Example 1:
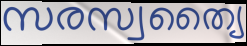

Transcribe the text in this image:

സരസ്വത്യൈ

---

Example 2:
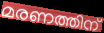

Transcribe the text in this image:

മരണത്തിന്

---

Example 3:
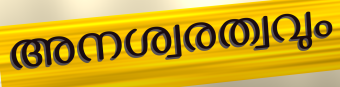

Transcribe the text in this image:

അനശ്വരത്വവും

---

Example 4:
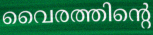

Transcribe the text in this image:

വൈരത്തിന്റെ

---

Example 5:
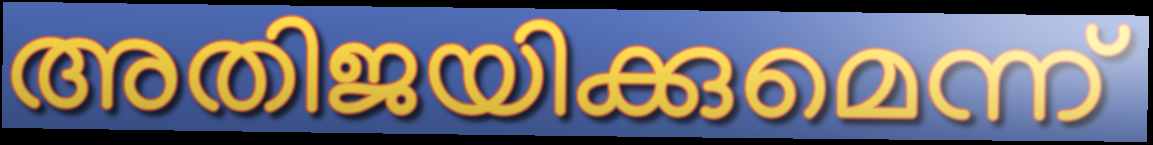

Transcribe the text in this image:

അതിജയിക്കുമെന്ന്